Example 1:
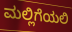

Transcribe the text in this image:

ಮಲ್ಲಿಗೆಯಲಿ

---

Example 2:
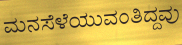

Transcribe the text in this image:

ಮನಸೆಳೆಯುವಂತಿದ್ದವು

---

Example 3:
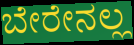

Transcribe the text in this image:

ಬೇರೇನಲ್ಲ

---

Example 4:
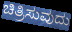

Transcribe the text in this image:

ಚಿತ್ರಿಸುವುದು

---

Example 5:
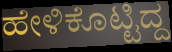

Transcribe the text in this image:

ಹೇಳಿಕೊಟ್ಟಿದ್ದ